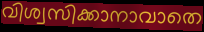
വിശ്വസിക്കാനാവാതെ